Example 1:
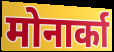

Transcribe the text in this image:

मोनार्का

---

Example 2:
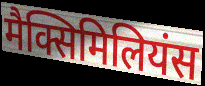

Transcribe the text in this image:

मैक्सिमिलियंस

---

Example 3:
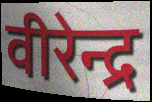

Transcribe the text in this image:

वीरेन्द्र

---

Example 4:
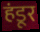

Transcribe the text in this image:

हंडूर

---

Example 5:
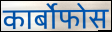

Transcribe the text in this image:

कार्बोफोस